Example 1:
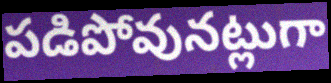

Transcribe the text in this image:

పడిపోవునట్లుగా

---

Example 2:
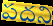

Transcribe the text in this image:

పదని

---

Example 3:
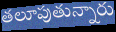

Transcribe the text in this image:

తలూపుతున్నారు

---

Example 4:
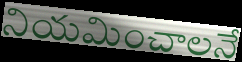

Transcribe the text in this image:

నియమించాలనే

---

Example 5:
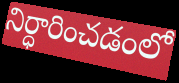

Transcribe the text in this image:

నిర్ధారించడంలో